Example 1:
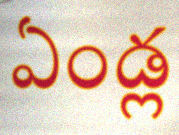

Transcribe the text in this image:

ఏండ్ల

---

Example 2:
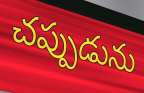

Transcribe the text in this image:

చప్పుడును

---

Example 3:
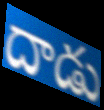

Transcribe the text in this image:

దాడు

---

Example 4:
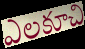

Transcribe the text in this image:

ఎలకూచి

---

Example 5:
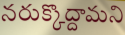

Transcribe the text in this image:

నరుక్కొద్దామని